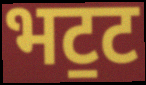
भट॒ट